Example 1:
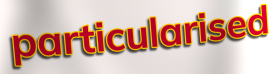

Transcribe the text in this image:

particularised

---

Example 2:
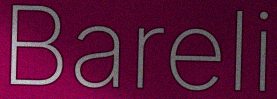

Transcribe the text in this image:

Bareli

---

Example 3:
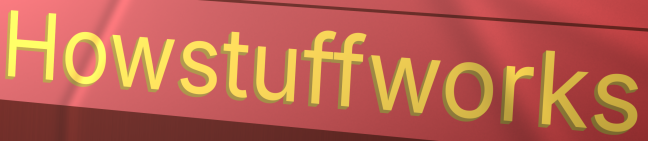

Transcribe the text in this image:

Howstuffworks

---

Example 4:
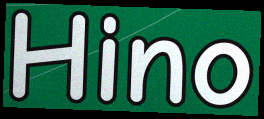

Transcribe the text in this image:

Hino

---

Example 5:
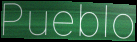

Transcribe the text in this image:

Pueblo